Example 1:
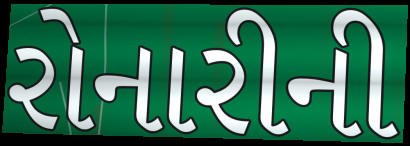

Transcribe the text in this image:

રોનારીની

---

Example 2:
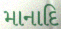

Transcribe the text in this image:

માનાદિ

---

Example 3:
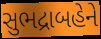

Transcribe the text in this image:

સુભદ્રાબહેને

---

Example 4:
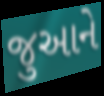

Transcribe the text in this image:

જુઆને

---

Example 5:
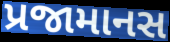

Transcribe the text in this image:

પ્રજામાનસ